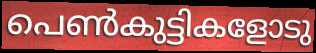
പെൺകുട്ടികളോടു